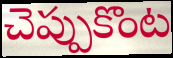
చెప్పుకొంట